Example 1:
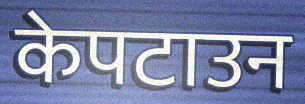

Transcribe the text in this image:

केपटाउन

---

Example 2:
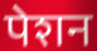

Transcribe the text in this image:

पेशन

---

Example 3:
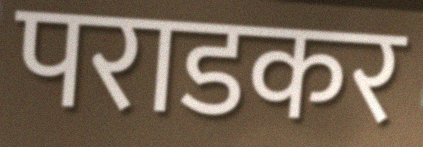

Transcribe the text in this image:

पराडकर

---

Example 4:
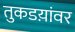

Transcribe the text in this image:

तुकडय़ांवर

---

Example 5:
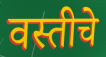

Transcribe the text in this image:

वस्तीचे